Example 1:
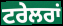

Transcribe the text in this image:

ਟਰੇਲਰਾਂ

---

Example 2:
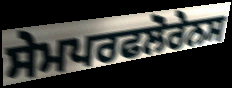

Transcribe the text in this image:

ਸੇਮਪਰਫਲੋਰੇਨਸ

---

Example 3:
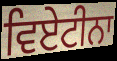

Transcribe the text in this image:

ਵਿਏਟੀਨਾ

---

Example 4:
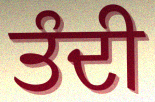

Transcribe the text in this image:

ਤੰਦੀ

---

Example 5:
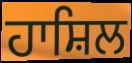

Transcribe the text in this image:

ਹਾਸ਼ਿਲ